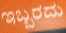
ಇಬ್ಬರದು